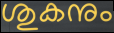
ശുകനും